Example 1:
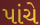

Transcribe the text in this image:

પાંચે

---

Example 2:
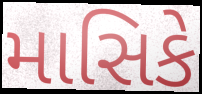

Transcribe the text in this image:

માસિકે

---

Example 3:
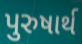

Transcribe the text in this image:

પુરુષાર્થ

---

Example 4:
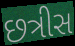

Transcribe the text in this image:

છત્રીસ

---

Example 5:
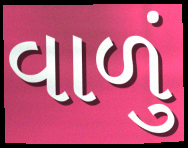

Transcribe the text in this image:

વાળું